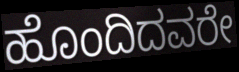
ಹೊಂದಿದವರೇ